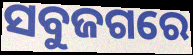
ସବୁଜଗରେ